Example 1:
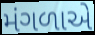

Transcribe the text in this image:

મંગળાએ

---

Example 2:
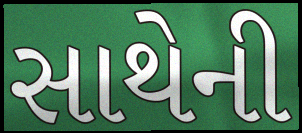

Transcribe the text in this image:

સાથેની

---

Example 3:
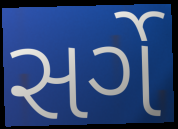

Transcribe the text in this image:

સર્ગે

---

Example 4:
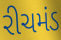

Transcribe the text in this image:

રીચમંડ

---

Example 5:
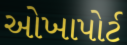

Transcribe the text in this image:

ઓખાપોર્ટ